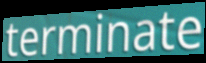
terminate